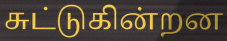
சுட்டுகின்றன